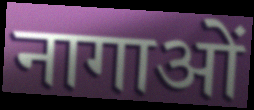
नागाओं